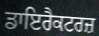
ਡਾਇਰੈਕਟਰਜ਼